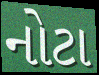
નોટા